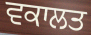
ਵਕਾਲਤ